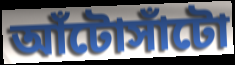
আঁটোসাঁটো